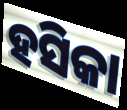
ହସିକା